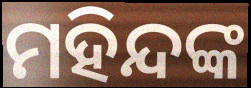
ମହିନ୍ଦଙ୍କ